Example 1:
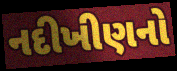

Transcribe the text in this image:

નદીખીણનો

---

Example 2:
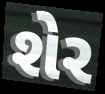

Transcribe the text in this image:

શેર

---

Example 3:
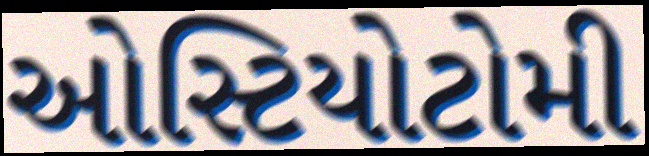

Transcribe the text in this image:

ઓસ્ટિયોટોમી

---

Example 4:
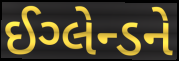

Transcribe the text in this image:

ઈગ્લેન્ડને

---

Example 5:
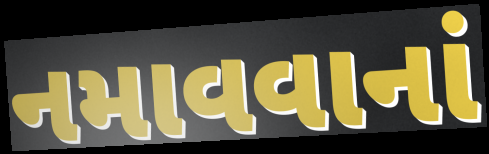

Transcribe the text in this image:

નમાવવાનાં